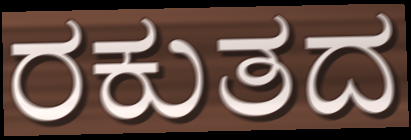
ರಕುತದ